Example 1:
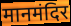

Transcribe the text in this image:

मानमंदिर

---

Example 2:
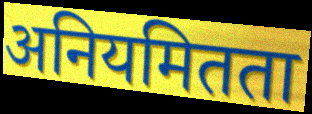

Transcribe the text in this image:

अनियमितता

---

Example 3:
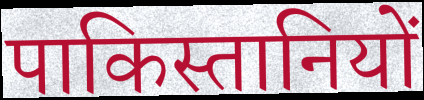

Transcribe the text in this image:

पाकिस्तानियों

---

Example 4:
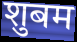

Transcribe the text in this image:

शुबम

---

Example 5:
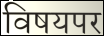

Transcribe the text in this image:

विषयपर